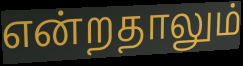
என்றதாலும்